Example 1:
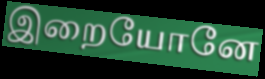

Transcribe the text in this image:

இறையோனே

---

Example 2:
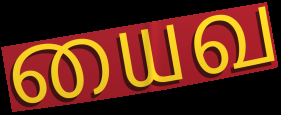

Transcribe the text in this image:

யைவ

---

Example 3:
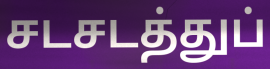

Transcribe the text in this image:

சடசடத்துப்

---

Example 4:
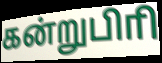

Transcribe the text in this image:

கன்றுபிரி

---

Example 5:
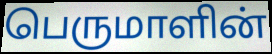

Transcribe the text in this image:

பெருமாளின்